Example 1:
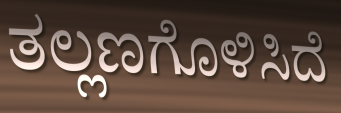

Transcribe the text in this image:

ತಲ್ಲಣಗೊಳಿಸಿದೆ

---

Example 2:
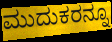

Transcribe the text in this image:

ಮುದುಕರನ್ನೂ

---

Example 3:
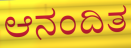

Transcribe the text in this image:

ಆನಂದಿತ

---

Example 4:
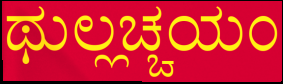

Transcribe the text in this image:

ಥುಲ್ಲಚ್ಚಯಂ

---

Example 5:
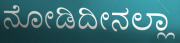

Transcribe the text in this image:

ನೋಡಿದೀನಲ್ಲಾ